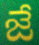
జే